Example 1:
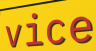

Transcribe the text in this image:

vice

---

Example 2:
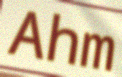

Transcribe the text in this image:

Ahm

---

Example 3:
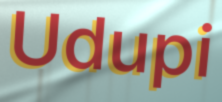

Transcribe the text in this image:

Udupi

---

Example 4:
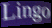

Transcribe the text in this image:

Lingo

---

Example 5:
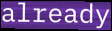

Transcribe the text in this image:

already